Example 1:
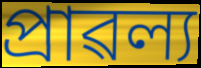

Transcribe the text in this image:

প্ৰাৱল্য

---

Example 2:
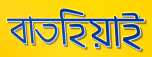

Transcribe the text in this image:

বাতহিয়াই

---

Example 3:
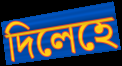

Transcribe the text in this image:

দিলেহে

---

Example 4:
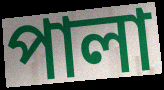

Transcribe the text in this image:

পালা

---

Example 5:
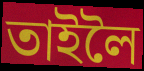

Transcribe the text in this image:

তাইলৈ